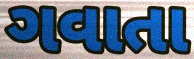
ગવાતા